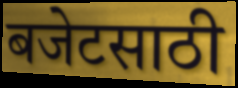
बजेटसाठी